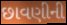
છાવણીની